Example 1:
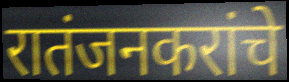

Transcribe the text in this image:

रातंजनकरांचे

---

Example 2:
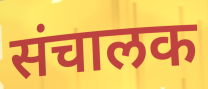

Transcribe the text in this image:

संचालक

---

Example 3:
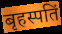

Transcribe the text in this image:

बृहस्पतिं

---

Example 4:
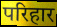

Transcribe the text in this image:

परिहार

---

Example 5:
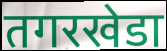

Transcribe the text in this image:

तगरखेडा